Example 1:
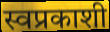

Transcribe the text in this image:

स्वप्रकाशी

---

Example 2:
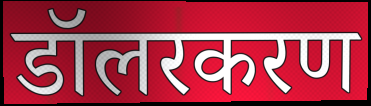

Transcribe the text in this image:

डॉलरकरण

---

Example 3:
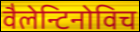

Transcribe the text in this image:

वैलेन्टिनोविच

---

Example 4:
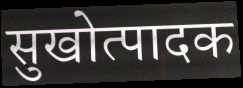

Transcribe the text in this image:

सुखोत्पादक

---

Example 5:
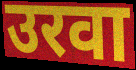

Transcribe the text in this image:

उरवा